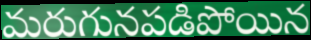
మరుగునపడిపోయిన